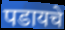
पडायचे